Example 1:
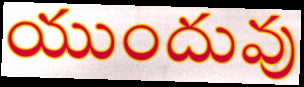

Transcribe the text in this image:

యుందువు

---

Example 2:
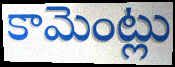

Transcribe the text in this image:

కామెంట్లు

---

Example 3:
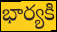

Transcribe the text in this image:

భార్యకి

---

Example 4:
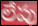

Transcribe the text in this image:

లేపు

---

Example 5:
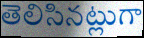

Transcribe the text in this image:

తెలిసినట్లుగా